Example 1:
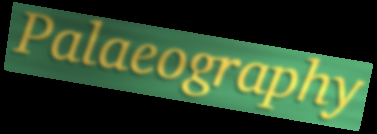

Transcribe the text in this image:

Palaeography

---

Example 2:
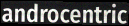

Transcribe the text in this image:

androcentric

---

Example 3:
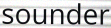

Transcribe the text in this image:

sounder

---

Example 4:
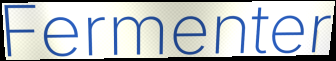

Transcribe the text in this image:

Fermenter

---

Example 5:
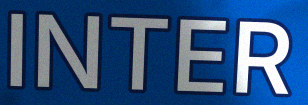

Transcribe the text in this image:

INTER